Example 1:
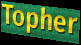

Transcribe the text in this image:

Topher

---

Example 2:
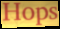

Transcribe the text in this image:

Hops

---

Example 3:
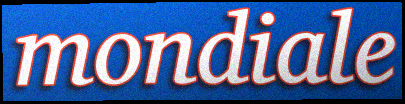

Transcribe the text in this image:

mondiale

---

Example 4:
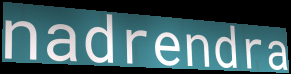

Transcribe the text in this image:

nadrendra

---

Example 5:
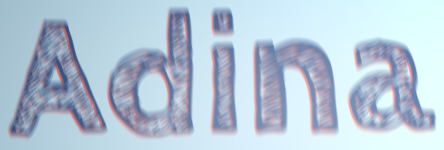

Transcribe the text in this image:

Adina